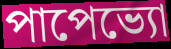
পাপেভ্যো